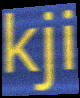
kji